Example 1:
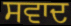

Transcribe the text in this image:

ਸਵਾਦ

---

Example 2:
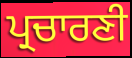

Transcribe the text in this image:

ਪ੍ਰਚਾਰਣੀ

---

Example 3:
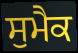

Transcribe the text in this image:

ਸੁਮੈਕ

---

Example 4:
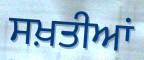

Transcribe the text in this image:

ਸਖ਼ਤੀਆਂ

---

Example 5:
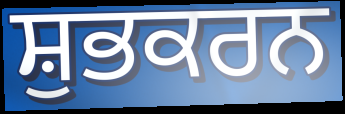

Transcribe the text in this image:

ਸ਼ੁਭਕਰਨ